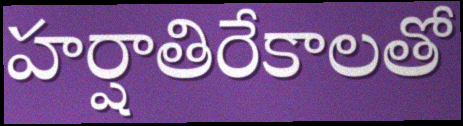
హర్షాతిరేకాలతో